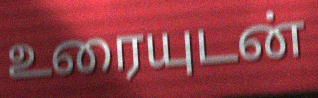
உரையுடன்